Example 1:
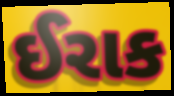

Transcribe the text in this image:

ઈરાક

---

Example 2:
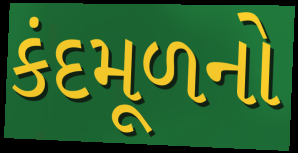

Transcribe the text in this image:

કંદમૂળનો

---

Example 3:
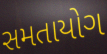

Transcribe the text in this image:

સમતાયોગ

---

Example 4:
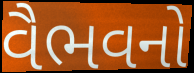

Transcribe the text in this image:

વૈભવનો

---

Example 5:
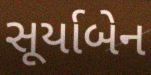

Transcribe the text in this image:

સૂર્યાબેન